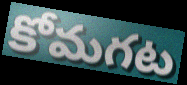
కోమగట